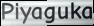
Piyaguka